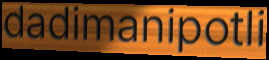
dadimanipotli